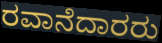
ರವಾನೆದಾರರು